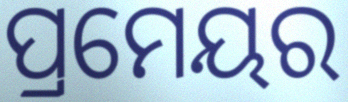
ପ୍ରମେୟର